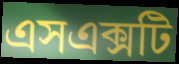
এসএক্সটি